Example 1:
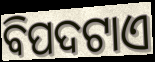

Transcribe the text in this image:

ବିପଦଟାଏ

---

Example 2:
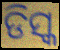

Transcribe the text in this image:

ଡିସ୍କ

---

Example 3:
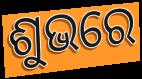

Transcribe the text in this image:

ଶୁଭରେ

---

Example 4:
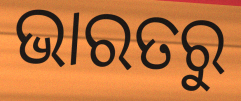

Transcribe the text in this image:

ଭାରତରୁ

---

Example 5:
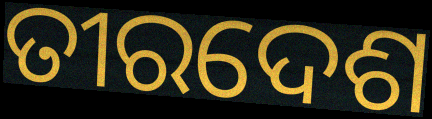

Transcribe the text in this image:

ତୀରଦେଶ